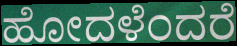
ಹೋದಳೆಂದರೆ